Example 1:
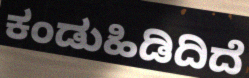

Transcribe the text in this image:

ಕಂಡುಹಿಡಿದಿದೆ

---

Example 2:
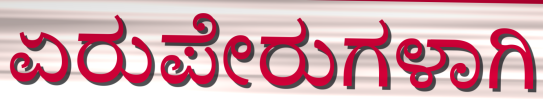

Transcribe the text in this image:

ಏರುಪೇರುಗಳಾಗಿ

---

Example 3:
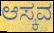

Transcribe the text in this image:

ಆಸ್ಕವ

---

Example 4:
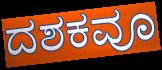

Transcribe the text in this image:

ದಶಕವೂ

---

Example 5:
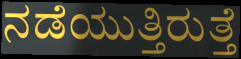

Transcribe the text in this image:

ನಡೆಯುತ್ತಿರುತ್ತೆ